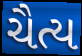
ચૈત્ય